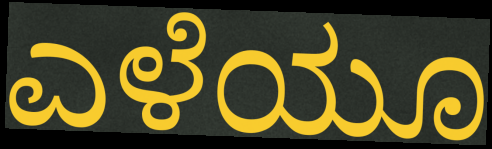
ಎಳೆಯೂ